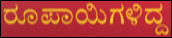
ರೂಪಾಯಿಗಳಿದ್ದ